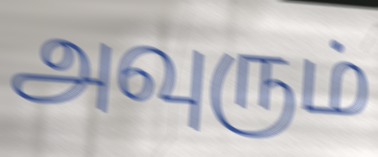
அவுரும்